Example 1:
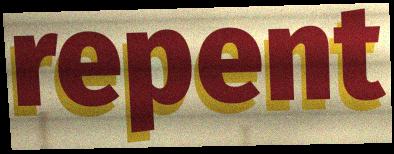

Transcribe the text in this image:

repent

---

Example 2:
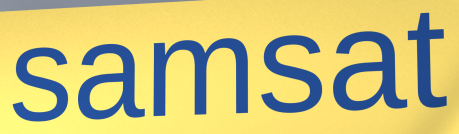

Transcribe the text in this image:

samsat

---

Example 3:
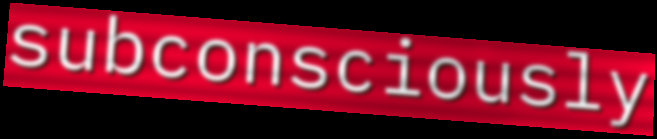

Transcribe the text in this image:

subconsciously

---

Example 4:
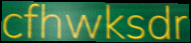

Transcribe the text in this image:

cfhwksdr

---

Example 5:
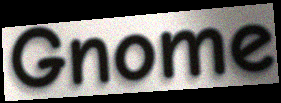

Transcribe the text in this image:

Gnome